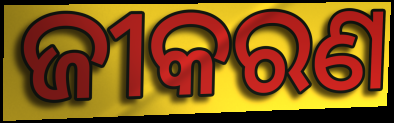
ଜୀକରଣ